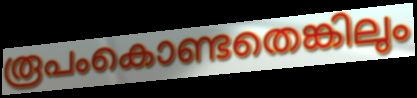
രൂപംകൊണ്ടതെങ്കിലും